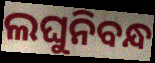
ଲଘୁନିବନ୍ଧ